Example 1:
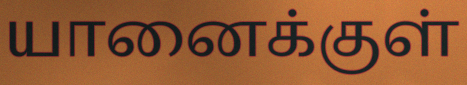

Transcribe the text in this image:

யானைக்குள்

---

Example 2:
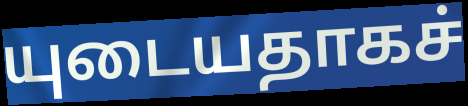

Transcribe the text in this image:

யுடையதாகச்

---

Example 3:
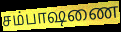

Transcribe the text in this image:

சம்பாஷணை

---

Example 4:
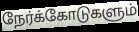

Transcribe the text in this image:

நேர்க்கோடுகளும்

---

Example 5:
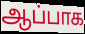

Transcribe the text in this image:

ஆப்பாக